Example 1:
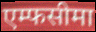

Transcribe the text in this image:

एम्फसीमा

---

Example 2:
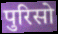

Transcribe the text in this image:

पुरिसो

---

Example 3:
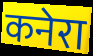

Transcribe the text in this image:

कनेरा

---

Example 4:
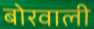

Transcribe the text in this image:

बोरवाली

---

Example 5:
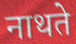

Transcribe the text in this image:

नाथते